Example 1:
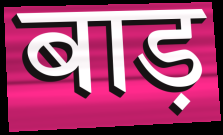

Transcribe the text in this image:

बाड़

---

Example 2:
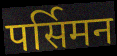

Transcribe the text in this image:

पर्सिमन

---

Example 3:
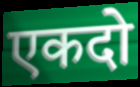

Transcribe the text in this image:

एकदो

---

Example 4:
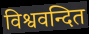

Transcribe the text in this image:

विश्ववन्दित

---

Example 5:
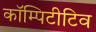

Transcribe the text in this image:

कॉम्पिटीटिव